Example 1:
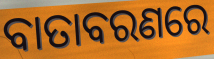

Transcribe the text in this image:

ବାତାବରଣରେ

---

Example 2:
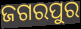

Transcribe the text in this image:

ଜଗରପୁର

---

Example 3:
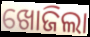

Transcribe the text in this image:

ଖୋଜିଲା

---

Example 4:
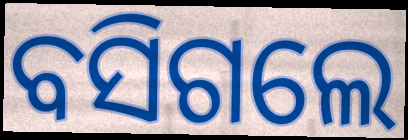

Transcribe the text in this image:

ବସିଗଲେ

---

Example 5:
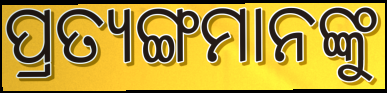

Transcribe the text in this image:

ପ୍ରତ୍ୟଙ୍ଗମାନଙ୍କୁ